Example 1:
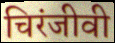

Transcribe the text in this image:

चिरंजीवी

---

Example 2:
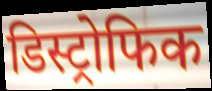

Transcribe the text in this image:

डिस्ट्रोफिक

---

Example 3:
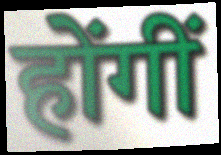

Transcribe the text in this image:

होंगीं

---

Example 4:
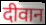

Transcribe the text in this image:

दीवान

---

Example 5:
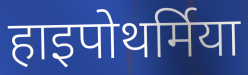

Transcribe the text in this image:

हाइपोथर्मिया